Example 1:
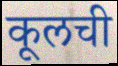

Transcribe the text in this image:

कूलची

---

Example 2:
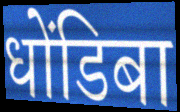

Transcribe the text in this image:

धोंडिबा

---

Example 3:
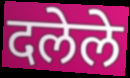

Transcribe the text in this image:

दलेले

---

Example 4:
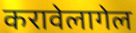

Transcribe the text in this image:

करावेलागेल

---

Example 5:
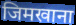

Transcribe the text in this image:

जिमखाना